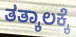
ತತ್ಕಾಲಕ್ಕೆ